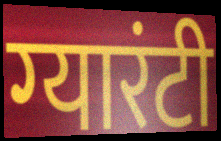
ग्‍यारंटी